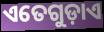
ଏତେଗୁଡ଼ାଏ